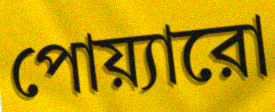
পোয়্যারো